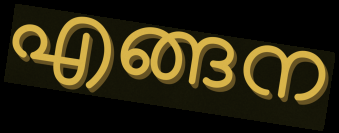
എങ്ങന